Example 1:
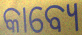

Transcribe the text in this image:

କାବ୍ୟେ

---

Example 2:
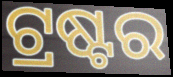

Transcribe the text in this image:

ଟ୍ରଷ୍ଟର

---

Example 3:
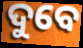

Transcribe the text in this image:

ଦୁବେ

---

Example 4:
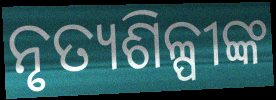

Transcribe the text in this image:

ନୃତ୍ୟଶିଳ୍ପୀଙ୍କ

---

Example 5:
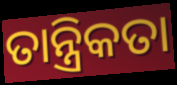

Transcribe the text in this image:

ତାନ୍ତ୍ରିକତା